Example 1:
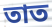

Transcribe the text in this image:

তাত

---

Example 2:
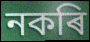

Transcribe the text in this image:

নকৰি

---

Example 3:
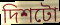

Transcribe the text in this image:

দিশটো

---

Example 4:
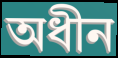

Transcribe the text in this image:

অধীন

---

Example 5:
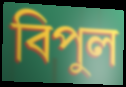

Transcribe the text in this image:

বিপুল